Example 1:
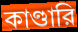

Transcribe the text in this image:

কাণ্ডারি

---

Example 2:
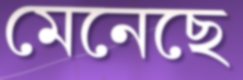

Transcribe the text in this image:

মেনেছে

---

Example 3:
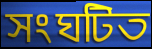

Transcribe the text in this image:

সংঘটিত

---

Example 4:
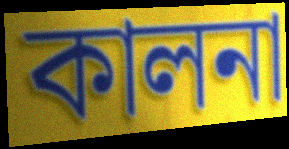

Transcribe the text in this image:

কালনা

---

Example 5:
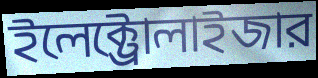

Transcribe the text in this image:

ইলেক্ট্রোলাইজার